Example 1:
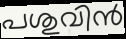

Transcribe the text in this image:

പശുവിൻ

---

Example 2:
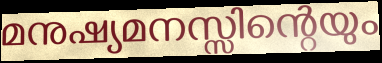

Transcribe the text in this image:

മനുഷ്യമനസ്സിന്റെയും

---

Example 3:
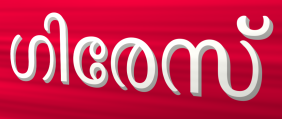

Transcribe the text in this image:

ഗിരേസ്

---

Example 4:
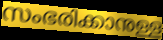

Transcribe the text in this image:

സംഭരിക്കാനുള്ള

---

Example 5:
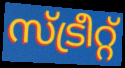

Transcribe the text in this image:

സ്ട്രീറ്റ്